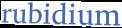
rubidium